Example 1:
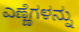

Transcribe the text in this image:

ಎಣ್ಣೆಗಳನ್ನು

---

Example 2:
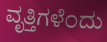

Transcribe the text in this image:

ವೃತ್ತಿಗಳೆಂದು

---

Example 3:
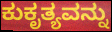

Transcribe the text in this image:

ಕುಕೃತ್ಯವನ್ನು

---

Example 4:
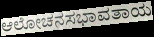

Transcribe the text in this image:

ಆಲೋಚನಸಭಾವತಾಯ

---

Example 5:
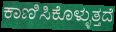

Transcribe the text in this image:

ಕಾಣಿಸಿಕೊಳ್ಳುತ್ತದೆ